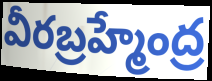
వీరబ్రహ్మేంద్ర